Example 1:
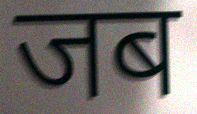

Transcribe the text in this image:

जब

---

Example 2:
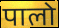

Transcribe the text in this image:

पालो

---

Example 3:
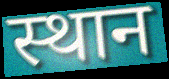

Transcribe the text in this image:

स्थान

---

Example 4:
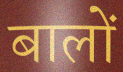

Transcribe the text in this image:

बालों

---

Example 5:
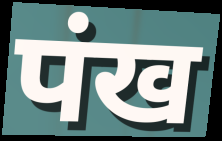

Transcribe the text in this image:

पंख